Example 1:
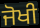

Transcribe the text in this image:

ਜੋਖੀ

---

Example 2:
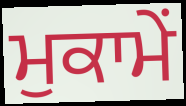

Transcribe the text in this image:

ਮੁਕਾਮੇਂ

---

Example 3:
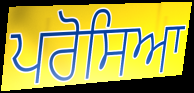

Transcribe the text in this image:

ਪਰੋਸਿਆ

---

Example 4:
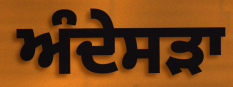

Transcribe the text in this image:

ਅੰਦੇਸੜਾ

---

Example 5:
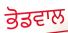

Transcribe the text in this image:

ਭੋਡਵਾਲ